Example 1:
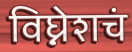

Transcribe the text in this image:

विघ्नेशचं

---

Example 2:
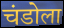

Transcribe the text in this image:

चंडोला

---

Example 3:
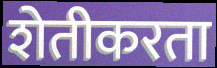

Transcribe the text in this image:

शेतीकरता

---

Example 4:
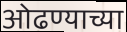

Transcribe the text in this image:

ओढण्याच्या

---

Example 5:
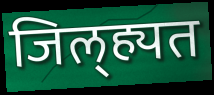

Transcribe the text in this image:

जिल्ह्यत